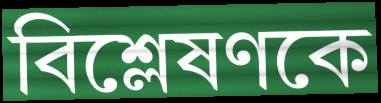
বিশ্লেষণকে